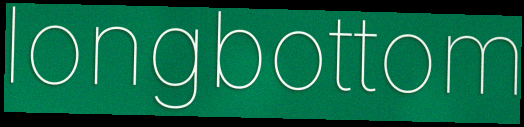
longbottom